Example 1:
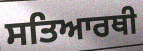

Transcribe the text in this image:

ਸਤਿਆਰਥੀ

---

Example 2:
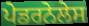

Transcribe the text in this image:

ਪੇਡਰਨੇਲੇਸ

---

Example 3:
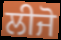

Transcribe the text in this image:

ਲੀਜੋ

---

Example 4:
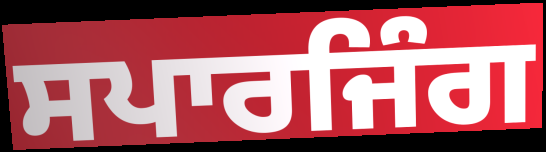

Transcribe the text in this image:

ਸਪਾਰਜਿੰਗ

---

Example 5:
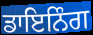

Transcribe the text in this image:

ਡਾਇਨਿੰਗ